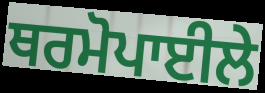
ਥਰਮੋਪਾਈਲੇ